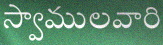
స్వాములవారి